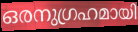
ഒരനുഗ്രഹമായി